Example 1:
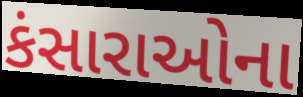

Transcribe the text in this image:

કંસારાઓના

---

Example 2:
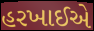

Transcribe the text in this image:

હરખાઈએ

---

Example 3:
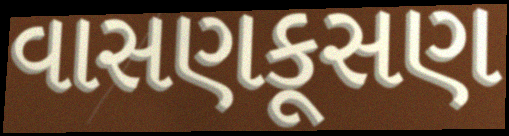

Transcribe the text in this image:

વાસણકૂસણ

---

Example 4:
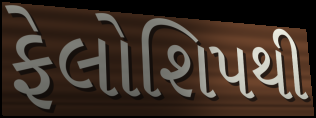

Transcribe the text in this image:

ફેલોશિપથી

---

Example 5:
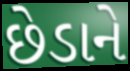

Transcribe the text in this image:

છેડાને